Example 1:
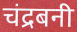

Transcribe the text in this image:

चंद्रबनी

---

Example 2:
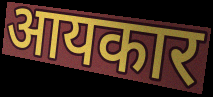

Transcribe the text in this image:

आयकार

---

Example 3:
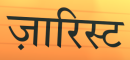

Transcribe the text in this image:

ज़ारिस्ट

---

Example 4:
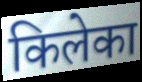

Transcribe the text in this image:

किलेका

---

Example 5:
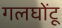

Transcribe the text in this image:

गलघोंटू